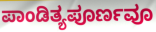
ಪಾಂಡಿತ್ಯಪೂರ್ಣವೂ